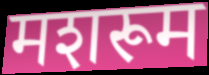
मशरूम